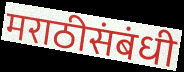
मराठीसंबंधी